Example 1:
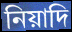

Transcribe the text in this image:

নিয়াদি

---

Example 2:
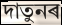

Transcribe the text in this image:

দাতুনৰ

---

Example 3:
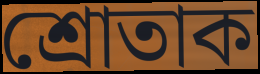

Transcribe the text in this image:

শ্ৰোতাক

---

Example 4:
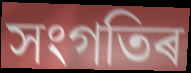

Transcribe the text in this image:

সংগতিৰ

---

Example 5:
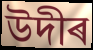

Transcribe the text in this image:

উদীৰ